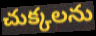
చుక్కలను